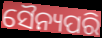
ସୈନ୍ୟପରି